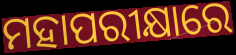
ମହାପରୀକ୍ଷାରେ